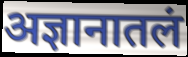
अज्ञानातलं